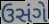
ઉસંગે